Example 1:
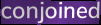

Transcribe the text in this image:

conjoined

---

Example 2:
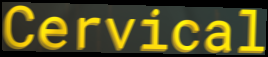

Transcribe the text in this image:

Cervical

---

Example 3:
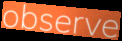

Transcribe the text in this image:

observe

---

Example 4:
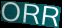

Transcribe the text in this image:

ORR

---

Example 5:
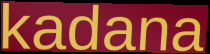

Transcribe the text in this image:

kadana